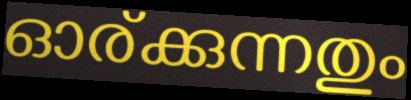
ഓര്ക്കുന്നതും